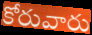
కోరువారు